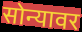
सोन्यावर